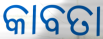
କାବତା